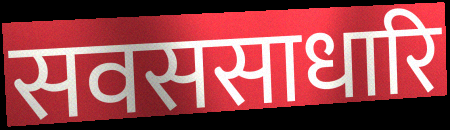
सवससाधारि